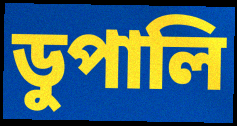
ডুপালি